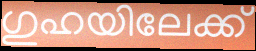
ഗുഹയിലേക്ക്